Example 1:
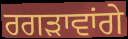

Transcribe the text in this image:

ਰਗੜਾਵਾਂਗੇ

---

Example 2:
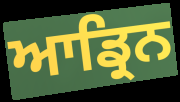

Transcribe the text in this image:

ਆਡ੍ਰਿਨ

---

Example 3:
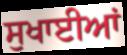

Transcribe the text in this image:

ਸੁਖਾਈਆਂ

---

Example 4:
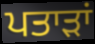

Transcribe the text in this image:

ਪਤਾੜਾਂ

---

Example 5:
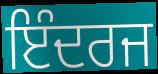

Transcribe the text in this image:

ਇੰਦਰਜ